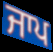
ਜਾਪ